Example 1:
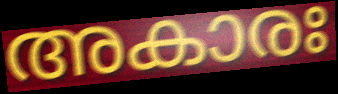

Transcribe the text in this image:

അകാരഃ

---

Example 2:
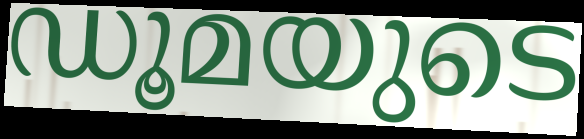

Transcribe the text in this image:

ഡൂമയുടെ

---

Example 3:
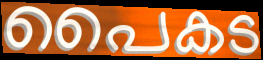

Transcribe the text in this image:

പൈകട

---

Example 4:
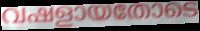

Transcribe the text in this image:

വഷളായതോടെ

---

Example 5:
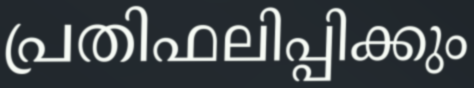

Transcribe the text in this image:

പ്രതിഫലിപ്പിക്കും